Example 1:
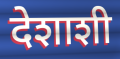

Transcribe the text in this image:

देशाशी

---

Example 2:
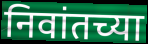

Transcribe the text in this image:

निवांतच्या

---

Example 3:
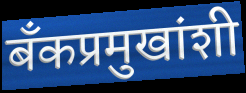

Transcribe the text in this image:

बँकप्रमुखांशी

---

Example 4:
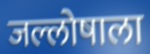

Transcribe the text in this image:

जल्लोषाला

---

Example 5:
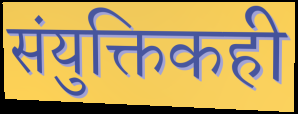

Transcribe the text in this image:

संयुक्तिकही